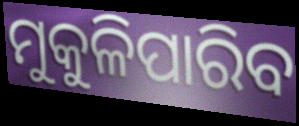
ମୁକୁଳିପାରିବ